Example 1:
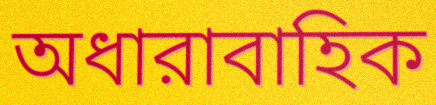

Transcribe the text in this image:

অধারাবাহিক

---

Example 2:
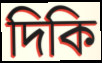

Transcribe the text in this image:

দিকি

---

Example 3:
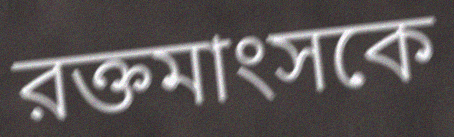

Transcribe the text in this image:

রক্তমাংসকে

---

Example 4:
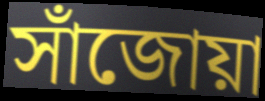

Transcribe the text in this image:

সাঁজোয়া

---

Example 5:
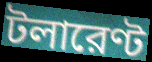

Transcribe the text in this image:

টলারেণ্ট